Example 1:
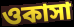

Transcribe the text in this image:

ওকাসা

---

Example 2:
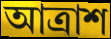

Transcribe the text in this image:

আত্রাশ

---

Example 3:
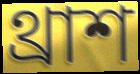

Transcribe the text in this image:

থ্রাশ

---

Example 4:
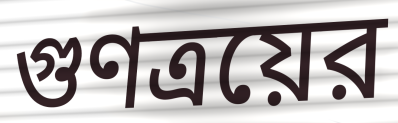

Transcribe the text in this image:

গুণত্রয়ের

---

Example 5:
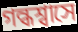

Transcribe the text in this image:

গন্ধশ্বাসে